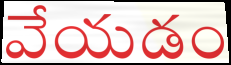
వేయడం